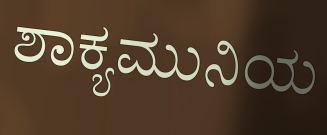
ಶಾಕ್ಯಮುನಿಯ